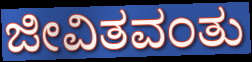
ಜೀವಿತವಂತು